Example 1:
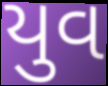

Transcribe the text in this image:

યુવ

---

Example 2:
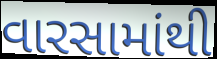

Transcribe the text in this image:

વારસામાંથી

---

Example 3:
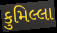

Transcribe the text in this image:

કુમિલ્લા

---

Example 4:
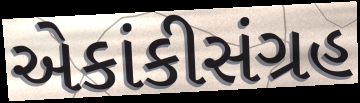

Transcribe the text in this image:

એકાંકીસંગ્રહ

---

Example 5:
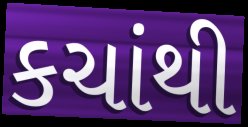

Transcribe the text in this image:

કચાંથી